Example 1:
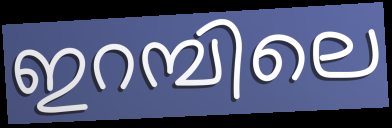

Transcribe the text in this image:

ഇറമ്പിലെ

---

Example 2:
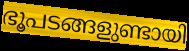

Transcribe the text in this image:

ഭൂപടങ്ങളുണ്ടായി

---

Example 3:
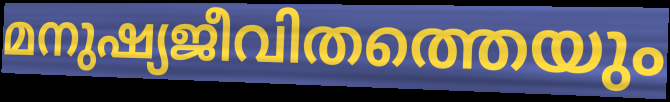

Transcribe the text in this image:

മനുഷ്യജീവിതത്തെയും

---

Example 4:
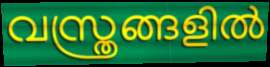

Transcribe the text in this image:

വസ്ത്രങ്ങളിൽ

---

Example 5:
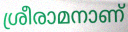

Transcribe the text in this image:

ശ്രീരാമനാണ്